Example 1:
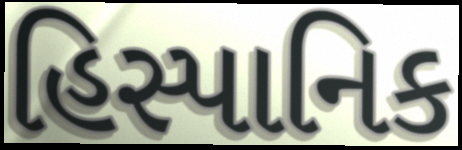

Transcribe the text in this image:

હિસ્પાનિક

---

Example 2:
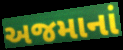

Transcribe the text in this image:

અજમાનાં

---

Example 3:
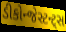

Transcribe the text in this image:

ડીકોન્જેસ્ટન્ટ્સ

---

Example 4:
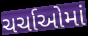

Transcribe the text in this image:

ચર્ચાઓમાં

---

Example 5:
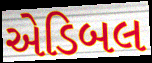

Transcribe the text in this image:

એડિબલ